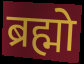
ब्रह्मो